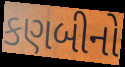
કણબીનો